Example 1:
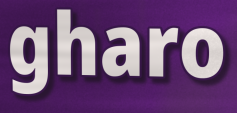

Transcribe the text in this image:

gharo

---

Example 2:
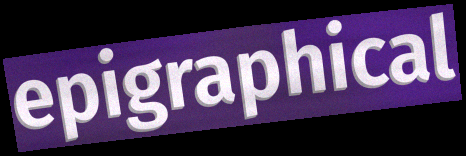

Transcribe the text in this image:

epigraphical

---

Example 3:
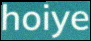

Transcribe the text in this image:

hoiye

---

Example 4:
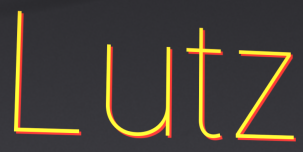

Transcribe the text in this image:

Lutz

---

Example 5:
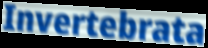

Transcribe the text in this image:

Invertebrata